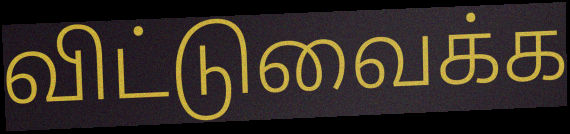
விட்டுவைக்க